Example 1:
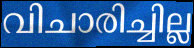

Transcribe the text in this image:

വിചാരിച്ചില്ല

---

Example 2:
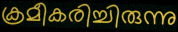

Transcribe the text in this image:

ക്രമീകരിച്ചിരുന്നു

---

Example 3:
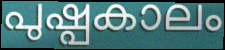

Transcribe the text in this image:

പുഷ്പകാലം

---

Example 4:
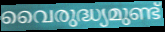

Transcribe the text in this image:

വൈരുദ്ധ്യമുണ്ട്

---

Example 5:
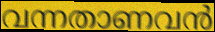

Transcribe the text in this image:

വന്നതാണവൻ